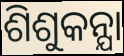
ଶିଶୁକନ୍ଯା